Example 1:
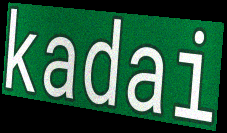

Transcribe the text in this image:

kadai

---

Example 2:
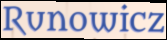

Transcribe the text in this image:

Runowicz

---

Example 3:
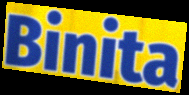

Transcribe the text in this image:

Binita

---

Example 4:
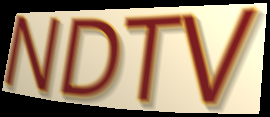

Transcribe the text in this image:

NDTV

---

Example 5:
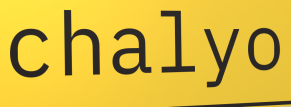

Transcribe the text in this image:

chalyo